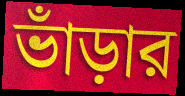
ভাঁড়ার